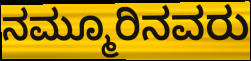
ನಮ್ಮೂರಿನವರು